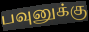
பவுனுக்கு